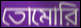
তোমোরি